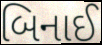
બિનાઈ